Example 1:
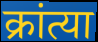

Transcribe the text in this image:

क्रांत्या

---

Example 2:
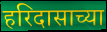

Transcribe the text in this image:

हरिदासाच्या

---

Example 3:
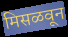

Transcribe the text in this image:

मिसळवून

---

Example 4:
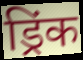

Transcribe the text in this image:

ड्रिंक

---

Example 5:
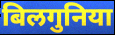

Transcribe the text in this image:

बिलगुनिया